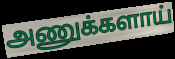
அணுக்களாய்